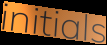
initials